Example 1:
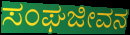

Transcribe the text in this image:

ಸಂಘಜೀವನ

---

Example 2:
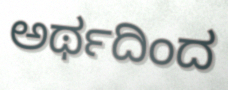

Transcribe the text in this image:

ಅರ್ಥದಿಂದ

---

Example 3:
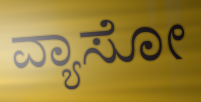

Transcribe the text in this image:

ವ್ಯಾಸೋ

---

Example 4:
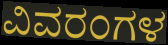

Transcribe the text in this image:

ವಿವರಂಗಳ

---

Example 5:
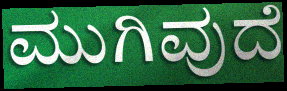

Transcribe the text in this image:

ಮುಗಿವುದೆ